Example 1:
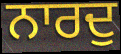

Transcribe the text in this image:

ਨਾਰਦੁ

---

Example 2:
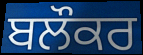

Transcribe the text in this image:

ਬਲੌਕਰ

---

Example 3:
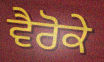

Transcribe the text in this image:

ਵੈਰੋਕੇ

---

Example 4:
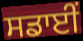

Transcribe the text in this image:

ਸਡਾਈਂ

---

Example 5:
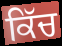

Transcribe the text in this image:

ਕਿੱਚ